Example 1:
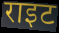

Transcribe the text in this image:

राइट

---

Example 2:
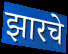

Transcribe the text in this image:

झारचे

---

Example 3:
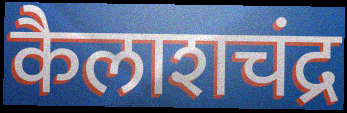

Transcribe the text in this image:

कैलाशचंद्र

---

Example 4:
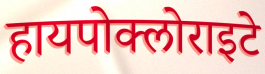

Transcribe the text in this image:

हायपोक्लोराइटे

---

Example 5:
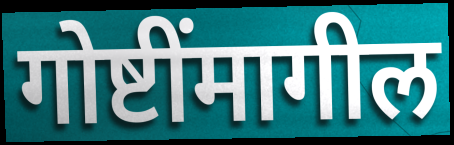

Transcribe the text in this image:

गोष्टींमागील